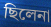
ছিলেনা